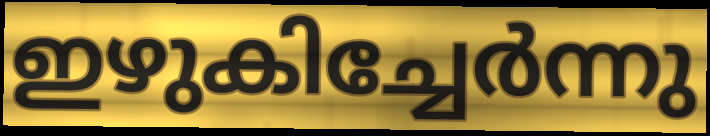
ഇഴുകിച്ചേർന്നു